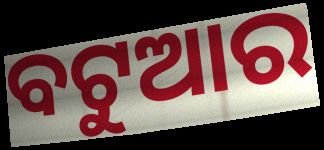
ବଟୁଆର